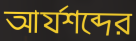
আর্যশব্দের